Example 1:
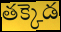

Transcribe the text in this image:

తక్కెడ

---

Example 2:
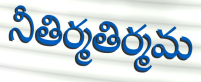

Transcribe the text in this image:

నీతిర్మతిర్మమ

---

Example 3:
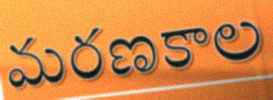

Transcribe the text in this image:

మరణకాల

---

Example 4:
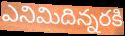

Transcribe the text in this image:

ఎనిమిదిన్నరకి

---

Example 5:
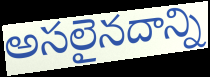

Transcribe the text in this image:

అసలైనదాన్ని